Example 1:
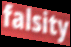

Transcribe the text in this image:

falsity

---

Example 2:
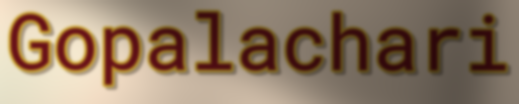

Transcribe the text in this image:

Gopalachari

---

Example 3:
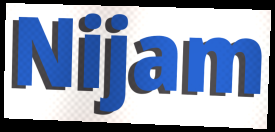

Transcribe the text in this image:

Nijam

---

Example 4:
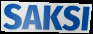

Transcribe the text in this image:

SAKSI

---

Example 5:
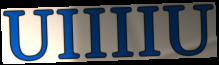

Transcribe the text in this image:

UIIIIU